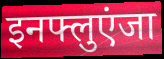
इनफ्लुएंजा